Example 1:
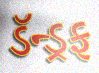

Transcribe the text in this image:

ડૅન્ડ્રફ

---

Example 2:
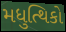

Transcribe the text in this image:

મધુત્થિકો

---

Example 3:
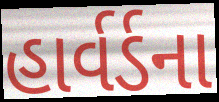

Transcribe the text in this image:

હાર્વર્ડના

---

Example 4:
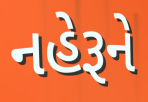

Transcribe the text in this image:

નહેરૂને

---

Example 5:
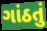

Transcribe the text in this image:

ગાંઠતું